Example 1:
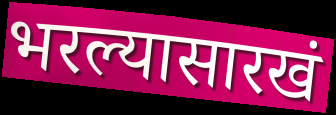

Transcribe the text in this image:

भरल्यासारखं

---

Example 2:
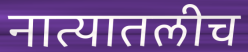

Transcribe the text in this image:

नात्यातलीच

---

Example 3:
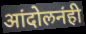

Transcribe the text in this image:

आंदोलनंही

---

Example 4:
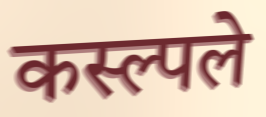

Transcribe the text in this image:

कस्ल्पले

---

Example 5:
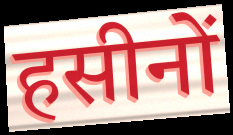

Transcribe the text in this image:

हसीनों